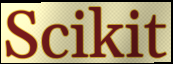
Scikit